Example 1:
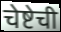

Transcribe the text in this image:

चेष्टेची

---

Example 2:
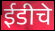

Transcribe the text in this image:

ईडीचे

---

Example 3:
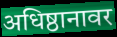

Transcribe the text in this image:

अधिष्ठानावर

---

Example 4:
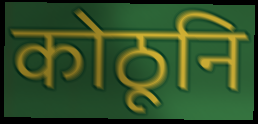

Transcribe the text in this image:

कोठूनि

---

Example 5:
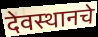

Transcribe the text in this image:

देवस्थानचे